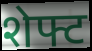
शेफ्ट